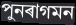
পুনৰাগমন